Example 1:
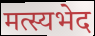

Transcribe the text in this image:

मत्स्यभेद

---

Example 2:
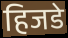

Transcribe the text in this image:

हिजडे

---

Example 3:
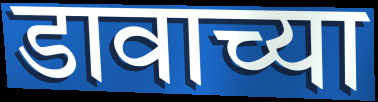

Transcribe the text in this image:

डावाच्या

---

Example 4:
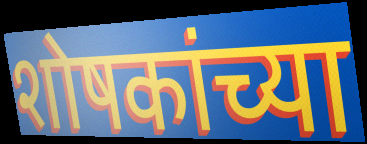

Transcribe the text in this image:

शोषकांच्या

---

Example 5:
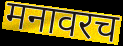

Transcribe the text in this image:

मनावरच